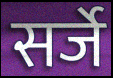
सर्जे